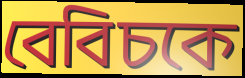
বেবিচকে